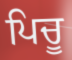
ਪਿਚੂ